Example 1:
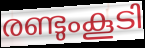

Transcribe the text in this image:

രണ്ടുംകൂടി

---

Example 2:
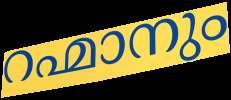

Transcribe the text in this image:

റഹ്മാനും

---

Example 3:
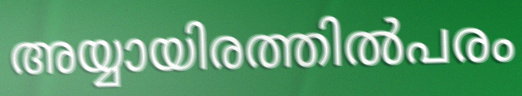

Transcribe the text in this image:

അയ്യായിരത്തിൽപരം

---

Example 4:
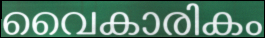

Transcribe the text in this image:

വൈകാരികം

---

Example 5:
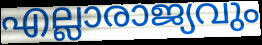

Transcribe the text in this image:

എല്ലാരാജ്യവും